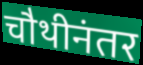
चौथीनंतर